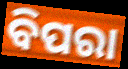
ବିପରା